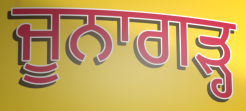
ਜੂਨਾਗੜ੍ਹ